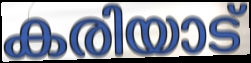
കരിയാട്